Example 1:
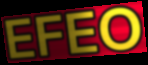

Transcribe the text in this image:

EFEO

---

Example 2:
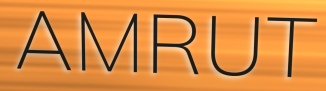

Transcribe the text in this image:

AMRUT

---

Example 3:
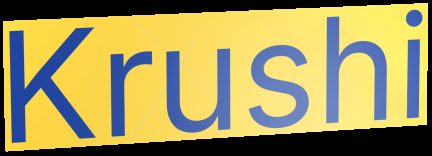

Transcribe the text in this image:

Krushi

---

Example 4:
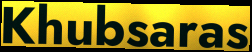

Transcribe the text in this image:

Khubsaras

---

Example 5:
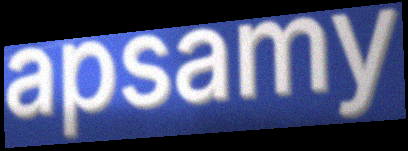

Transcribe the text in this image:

apsamy